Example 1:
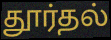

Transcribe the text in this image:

தூர்தல்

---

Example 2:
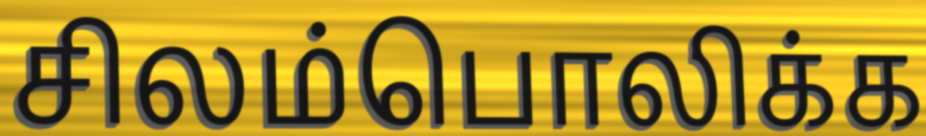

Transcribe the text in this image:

சிலம்பொலிக்க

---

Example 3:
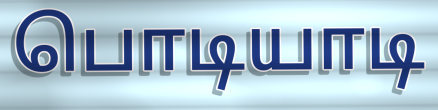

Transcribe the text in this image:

பொடியாடி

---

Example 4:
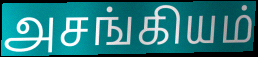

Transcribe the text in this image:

அசங்கியம்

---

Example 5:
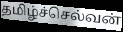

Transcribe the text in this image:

தமிழ்ச்செல்வன்